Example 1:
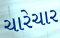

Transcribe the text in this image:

ચારેચાર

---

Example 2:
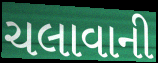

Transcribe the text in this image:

ચલાવાની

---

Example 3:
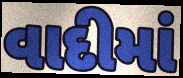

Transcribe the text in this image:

વાદીમાં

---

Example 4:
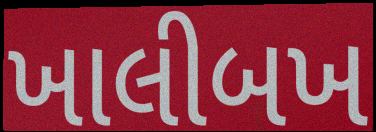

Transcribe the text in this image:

ખાલીબખ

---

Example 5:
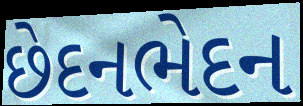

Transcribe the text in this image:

છેદનભેદન